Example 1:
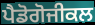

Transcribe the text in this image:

ਪੈਡੋਗੋਜੀਕਲ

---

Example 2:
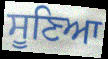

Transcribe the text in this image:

ਸੂਣਿਆ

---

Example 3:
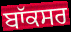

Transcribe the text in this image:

ਬਾੱਕਸਰ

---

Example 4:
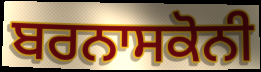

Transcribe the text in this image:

ਬਰਨਾਸਕੋਨੀ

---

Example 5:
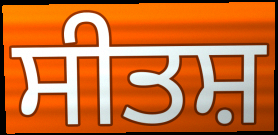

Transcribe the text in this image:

ਸੀਤਸ਼